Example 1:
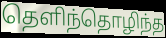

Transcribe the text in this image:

தெளிந்தொழிந்த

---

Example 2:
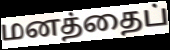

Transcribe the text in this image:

மனத்தைப்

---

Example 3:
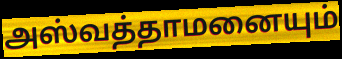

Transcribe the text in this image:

அஸ்வத்தாமனையும்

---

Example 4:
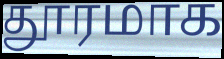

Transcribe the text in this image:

தூரமாக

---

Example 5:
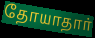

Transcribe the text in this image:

தோயாதார்